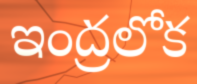
ఇంద్రలోక